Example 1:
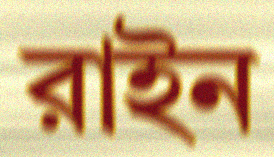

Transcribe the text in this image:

রাইন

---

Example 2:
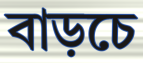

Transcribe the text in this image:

বাড়চে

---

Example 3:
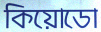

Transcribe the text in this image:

কিয়োডো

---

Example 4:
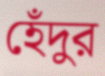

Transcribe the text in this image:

হেঁদুর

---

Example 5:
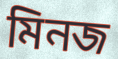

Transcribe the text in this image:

মিনজ